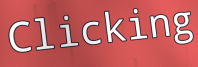
Clicking